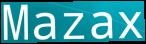
Mazax